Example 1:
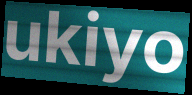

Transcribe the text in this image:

ukiyo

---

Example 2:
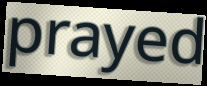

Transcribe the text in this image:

prayed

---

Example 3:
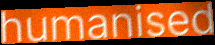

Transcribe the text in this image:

humanised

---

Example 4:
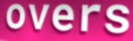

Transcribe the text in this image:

overs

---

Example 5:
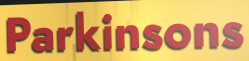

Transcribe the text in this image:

Parkinsons